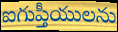
ఐగుప్తీయులను